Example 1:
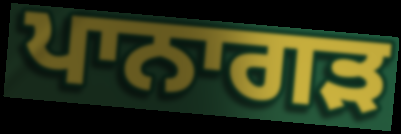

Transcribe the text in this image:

ਪਾਨਾਗੜ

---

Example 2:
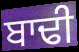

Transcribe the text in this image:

ਬਾਢੀ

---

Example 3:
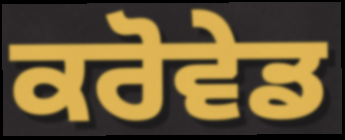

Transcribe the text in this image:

ਕਰੋਵੇਡ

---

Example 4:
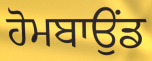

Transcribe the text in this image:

ਹੋਮਬਾਉਂਡ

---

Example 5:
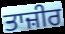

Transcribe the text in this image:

ਤਾਜ਼ੀਰ